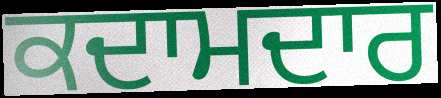
ਕਦਾਮਦਾਰ